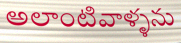
అలాంటివాళ్ళను